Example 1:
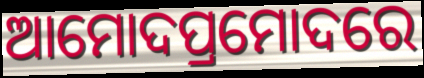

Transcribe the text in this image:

ଆମୋଦପ୍ରମୋଦରେ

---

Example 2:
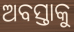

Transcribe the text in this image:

ଅବସ୍ତାକୁ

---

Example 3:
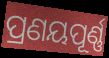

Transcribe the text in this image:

ପ୍ରଣୟପୂର୍ଣ୍ଣ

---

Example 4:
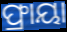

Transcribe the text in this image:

ଫ୍ରାୟା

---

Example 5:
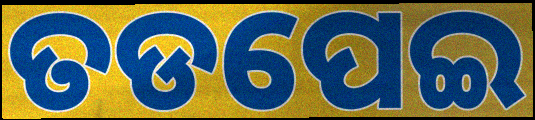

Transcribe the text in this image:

ତଡପେଇ